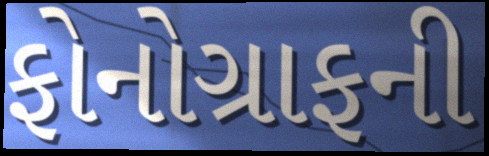
ફોનોગ્રાફની